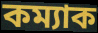
কম্যাক